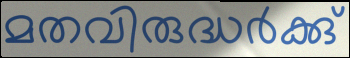
മതവിരുദ്ധർക്കു്